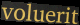
voluerit